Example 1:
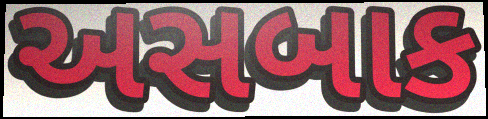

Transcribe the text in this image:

અસબાક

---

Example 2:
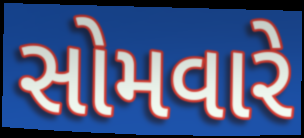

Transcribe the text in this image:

સોમવારે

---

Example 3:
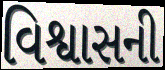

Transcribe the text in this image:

વિશ્વાસની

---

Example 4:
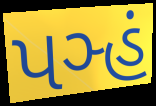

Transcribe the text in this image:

પઞ્હં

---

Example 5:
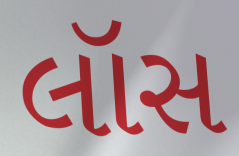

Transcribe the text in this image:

લૉસ